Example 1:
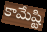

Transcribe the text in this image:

కామేష్టి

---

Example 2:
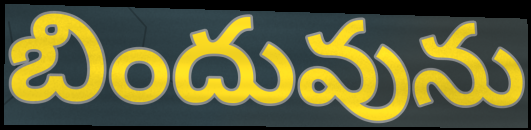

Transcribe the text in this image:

బిందువును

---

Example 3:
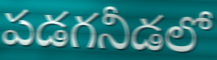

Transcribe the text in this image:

పడగనీడలో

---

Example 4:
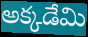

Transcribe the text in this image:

అక్కడేమి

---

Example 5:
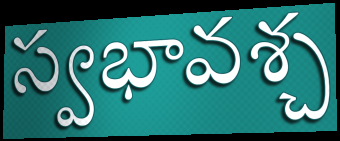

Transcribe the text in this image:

స్వభావశ్చ